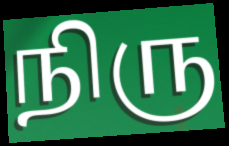
நிரு